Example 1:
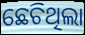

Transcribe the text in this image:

ଛେଚିଥିଲା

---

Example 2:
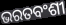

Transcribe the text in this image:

ଭରତବଂଶୀ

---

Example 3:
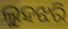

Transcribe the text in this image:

ଲୁହଝରି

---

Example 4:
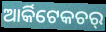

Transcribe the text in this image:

ଆର୍କିଟେକଚର୍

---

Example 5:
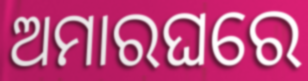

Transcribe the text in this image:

ଅମାରଘରେ